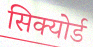
सिक्योर्ड